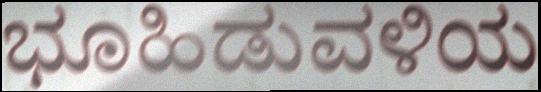
ಭೂಹಿಡುವಳಿಯ